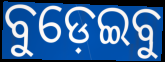
ବୁଡ଼େଇବୁ